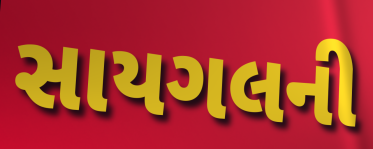
સાયગલની